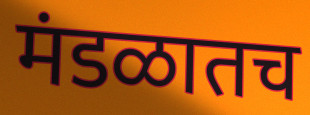
मंडळातच